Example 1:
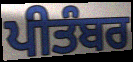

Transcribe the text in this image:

ਪੀਤੰਬਰ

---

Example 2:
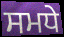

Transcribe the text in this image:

ਸਮਧੇ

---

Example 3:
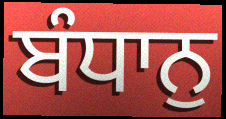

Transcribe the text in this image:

ਬੰਧਾਨੁ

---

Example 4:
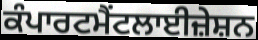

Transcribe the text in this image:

ਕੰਪਾਰਟਮੈਂਟਲਾਈਜ਼ੇਸ਼ਨ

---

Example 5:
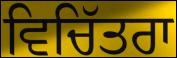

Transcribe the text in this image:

ਵਿਚਿੱਤਰਾ